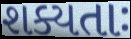
શક્યતાઃ